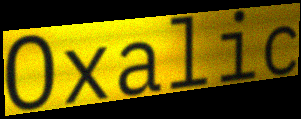
Oxalic